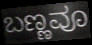
ಬಣ್ಣವೂ